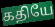
கதியே